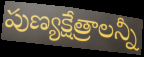
పుణ్యక్షేత్రాలన్నీ